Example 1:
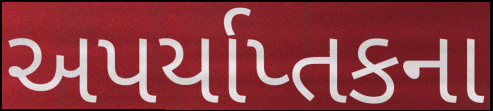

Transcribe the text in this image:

અપર્યાપ્તકના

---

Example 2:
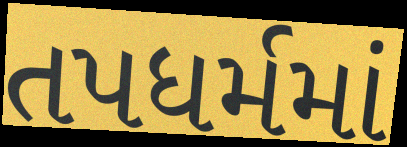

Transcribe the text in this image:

તપધર્મમાં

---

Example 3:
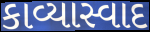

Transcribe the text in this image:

કાવ્યાસ્વાદ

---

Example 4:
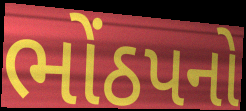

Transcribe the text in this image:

ભોંઠપનો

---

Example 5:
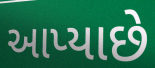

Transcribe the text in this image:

આપ્યાછે